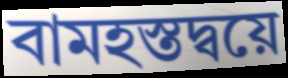
বামহস্তদ্বয়ে